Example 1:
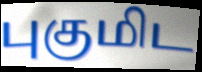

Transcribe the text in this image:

புகுமிட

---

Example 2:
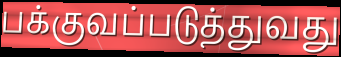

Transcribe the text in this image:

பக்குவப்படுத்துவது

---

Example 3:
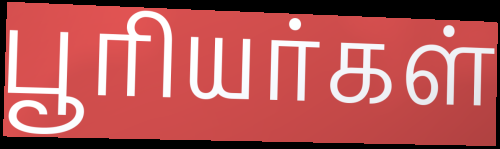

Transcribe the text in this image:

பூரியர்கள்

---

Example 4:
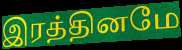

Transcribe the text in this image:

இரத்தினமே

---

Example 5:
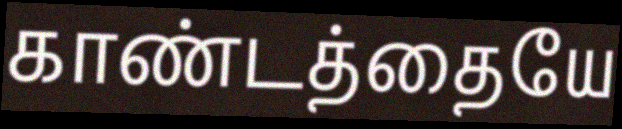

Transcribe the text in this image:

காண்டத்தையே